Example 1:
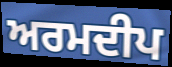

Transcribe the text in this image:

ਅਰਮਦੀਪ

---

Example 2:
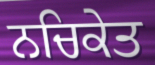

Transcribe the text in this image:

ਨਚਿਕੇਤ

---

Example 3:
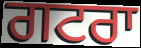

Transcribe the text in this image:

ਗਟਰਾ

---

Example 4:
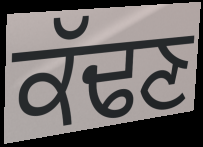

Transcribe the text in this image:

ਕੱਢਣ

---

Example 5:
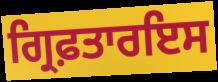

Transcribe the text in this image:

ਗ੍ਰਿਫ਼ਤਾਰਇਸ